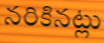
నరికినట్లు